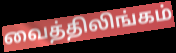
வைத்திலிங்கம்